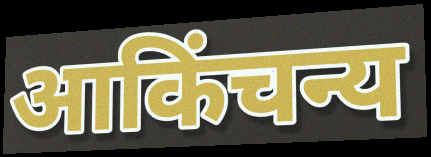
आकिंचन्य